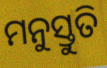
ମନୁସ୍ତୁତି